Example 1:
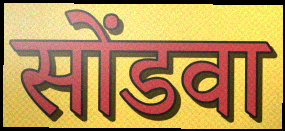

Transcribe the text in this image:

सोंडवा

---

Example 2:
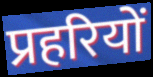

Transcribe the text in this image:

प्रहरियों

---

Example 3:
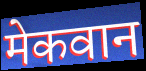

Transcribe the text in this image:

मेकवान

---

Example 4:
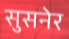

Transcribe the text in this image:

सुसनेर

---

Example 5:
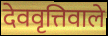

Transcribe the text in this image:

देववृत्तिवाले